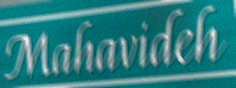
Mahavideh